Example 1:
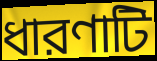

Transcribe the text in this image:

ধারণাটি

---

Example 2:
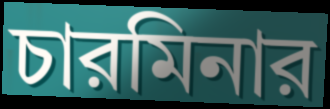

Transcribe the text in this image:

চারমিনার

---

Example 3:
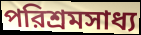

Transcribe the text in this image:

পরিশ্রমসাধ্য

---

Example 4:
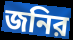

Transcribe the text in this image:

জনির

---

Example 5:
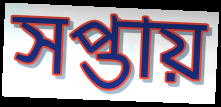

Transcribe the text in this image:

সপ্তায়